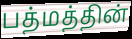
பத்மத்தின்